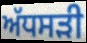
ਅੱਧਸੜੀ